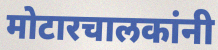
मोटारचालकांनी